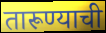
तारूण्याची